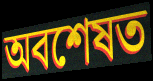
অবশেষত